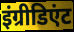
इंग्रीडिएंट